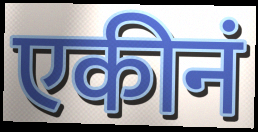
एकीनं